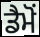
ਡੈਮੋਂ